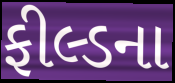
ફીલ્ડના